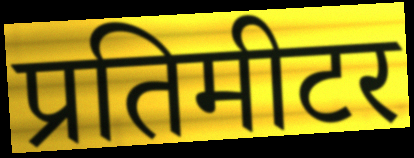
प्रतिमीटर